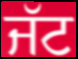
ਜੱਟ